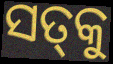
ସତ୍‌କୁ